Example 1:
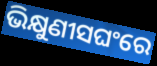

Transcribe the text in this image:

ଭିକ୍ଷୁଣୀସଘଂରେ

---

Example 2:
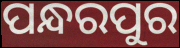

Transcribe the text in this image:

ପନ୍ଧରପୁର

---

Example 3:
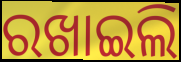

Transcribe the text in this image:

ରଖାଇଲି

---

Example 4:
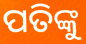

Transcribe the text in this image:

ପତିଙ୍କୁ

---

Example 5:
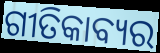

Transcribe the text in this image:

ଗୀତିକାବ୍ୟର